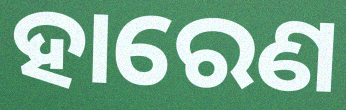
ହାରେଣ